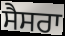
ਸੈਸਰਾ